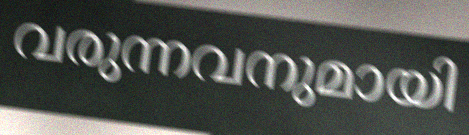
വരുന്നവനുമായി